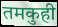
तमकुही